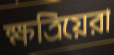
ক্ষত্রিয়েরা